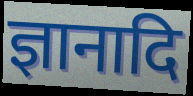
ज्ञानादि